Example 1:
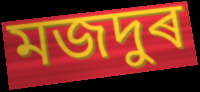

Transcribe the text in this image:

মজদুৰ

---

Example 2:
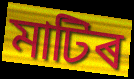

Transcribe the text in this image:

মাটিৰ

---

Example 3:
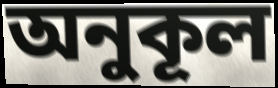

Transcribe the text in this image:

অনুকূল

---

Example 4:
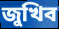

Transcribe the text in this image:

জুখিব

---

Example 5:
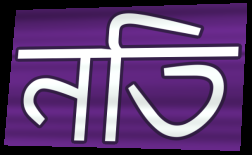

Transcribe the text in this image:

নতি